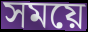
সময়ে